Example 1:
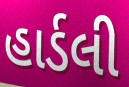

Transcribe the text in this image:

હાર્ડલી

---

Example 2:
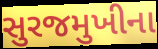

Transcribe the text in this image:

સુરજમુખીના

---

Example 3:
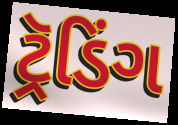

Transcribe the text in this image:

ટ્રૅડિંગ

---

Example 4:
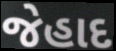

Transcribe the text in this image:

જેહાદ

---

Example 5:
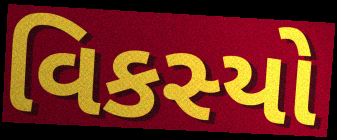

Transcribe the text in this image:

વિકસ્યો